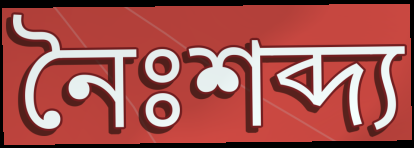
নৈঃশব্দ্য